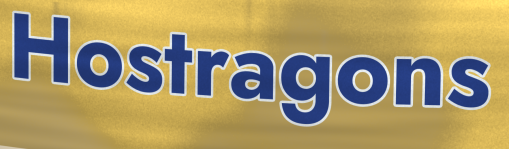
Hostragons